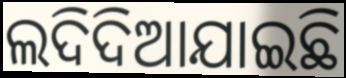
ଲଦିଦିଆଯାଇଛି